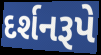
દર્શનરૂપે